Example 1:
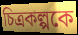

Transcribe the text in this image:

চিত্রকল্পকে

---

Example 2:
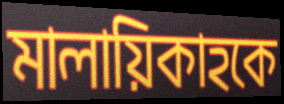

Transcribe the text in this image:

মালায়িকাহকে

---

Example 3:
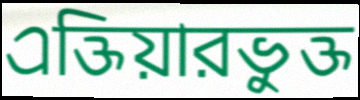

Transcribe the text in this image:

এক্তিয়ারভুক্ত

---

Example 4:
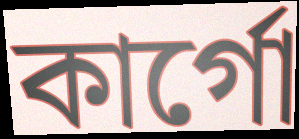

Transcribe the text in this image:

কার্গো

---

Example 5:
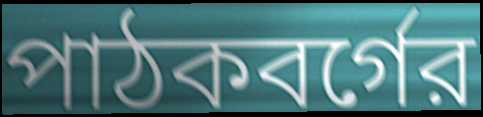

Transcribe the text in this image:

পাঠকবর্গের